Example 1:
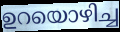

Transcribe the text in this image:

ഉറയൊഴിച്ച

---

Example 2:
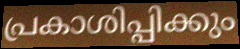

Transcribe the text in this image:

പ്രകാശിപ്പിക്കും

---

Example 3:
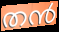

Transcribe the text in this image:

തൻ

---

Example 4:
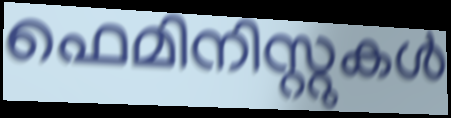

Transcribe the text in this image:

ഫെമിനിസ്റ്റുകൾ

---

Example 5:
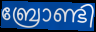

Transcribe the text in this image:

ബ്രോണ്ടി